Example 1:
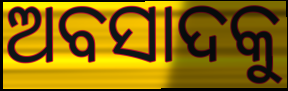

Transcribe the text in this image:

ଅବସାଦକୁ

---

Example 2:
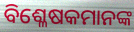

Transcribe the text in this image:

ବିଶ୍ଳେଷକମାନଙ୍କ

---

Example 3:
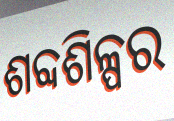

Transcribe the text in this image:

ଶବ୍ଦଶିଳ୍ପର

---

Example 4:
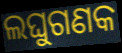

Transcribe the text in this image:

ଲଘୁଗଣକ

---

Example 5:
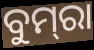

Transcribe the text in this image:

ବୁମ୍‌ରା